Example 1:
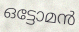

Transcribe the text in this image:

ഒട്ടോമൻ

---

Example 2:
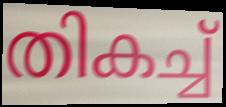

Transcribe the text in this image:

തികച്ച്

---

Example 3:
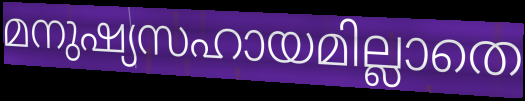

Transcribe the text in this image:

മനുഷ്യസഹായമില്ലാതെ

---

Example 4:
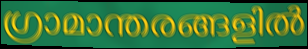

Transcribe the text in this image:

ഗ്രാമാന്തരങ്ങളിൽ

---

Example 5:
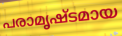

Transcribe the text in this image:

പരാമൃഷ്ടമായ